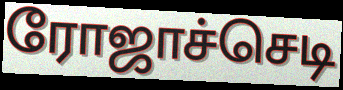
ரோஜாச்செடி